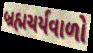
બ્રહ્મચર્યવાળો